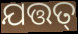
ଯତ୍ତତ୍